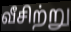
வீசிற்று